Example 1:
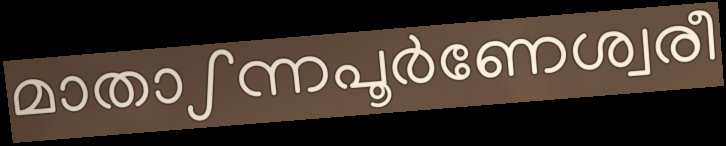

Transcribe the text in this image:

മാതാഽന്നപൂർണേശ്വരീ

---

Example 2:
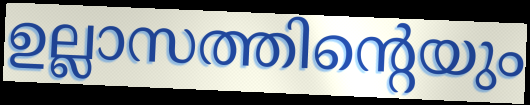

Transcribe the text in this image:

ഉല്ലാസത്തിന്റെയും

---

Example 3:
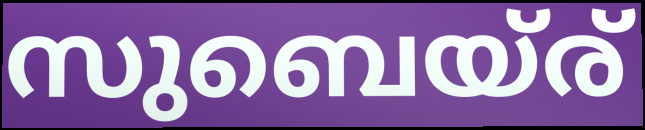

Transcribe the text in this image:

സുബെയ്ര്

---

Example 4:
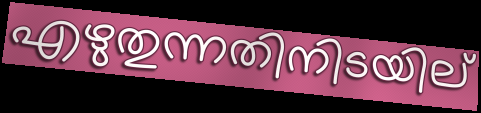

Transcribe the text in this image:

എഴുതുന്നതിനിടയില്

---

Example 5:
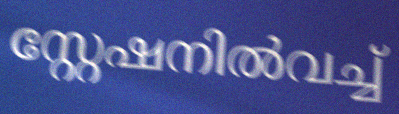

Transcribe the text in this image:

സ്റ്റേഷനിൽവച്ച്